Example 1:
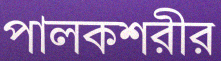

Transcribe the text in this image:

পালকশরীর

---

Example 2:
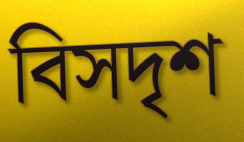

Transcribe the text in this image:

বিসদৃশ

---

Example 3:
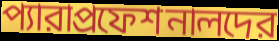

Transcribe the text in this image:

প্যারাপ্রফেশনালদের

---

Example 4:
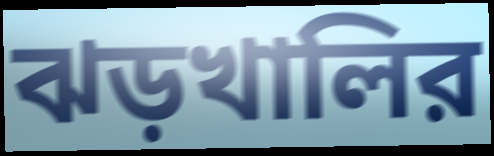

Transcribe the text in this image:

ঝড়খালির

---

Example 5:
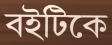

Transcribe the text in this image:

বইটিকে